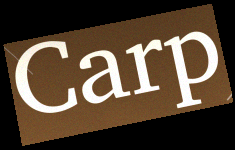
Carp